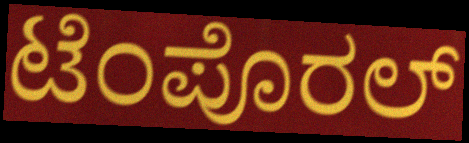
ಟೆಂಪೊರಲ್